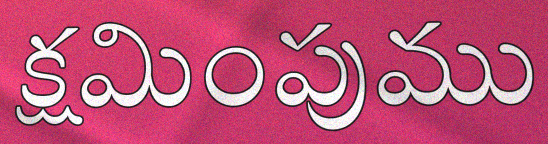
క్షమింపుము